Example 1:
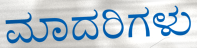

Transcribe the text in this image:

ಮಾದರಿಗಳು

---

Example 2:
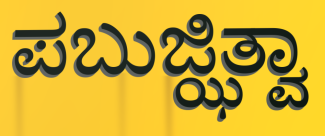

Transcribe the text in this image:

ಪಬುಜ್ಝಿತ್ವಾ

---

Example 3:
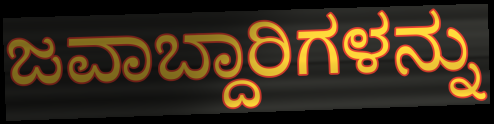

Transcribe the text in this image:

ಜವಾಬ್ದಾರಿಗಳನ್ನು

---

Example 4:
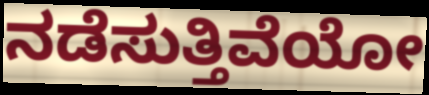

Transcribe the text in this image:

ನಡೆಸುತ್ತಿವೆಯೋ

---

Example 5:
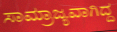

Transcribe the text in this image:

ಸಾಮ್ರಾಜ್ಯವಾಗಿದ್ದ